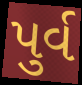
પુર્વ